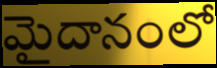
మైదానంలో